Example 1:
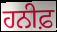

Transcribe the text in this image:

ਹਨੀਫ਼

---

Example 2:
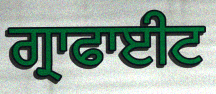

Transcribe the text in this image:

ਗ੍ਰਾਫਾਈਟ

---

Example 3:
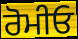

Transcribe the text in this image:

ਰੋਮੀਓ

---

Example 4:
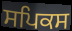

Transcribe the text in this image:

ਸਪਿਕਸ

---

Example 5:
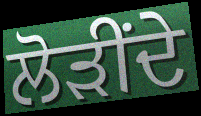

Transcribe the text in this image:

ਲੋੜੀਂਦੇ